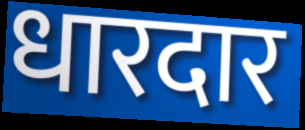
धारदार